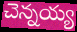
చెన్నయ్య